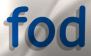
fod